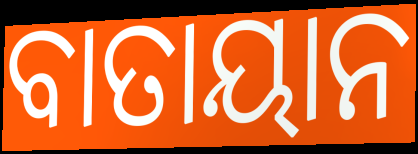
ବାତାୟାନ